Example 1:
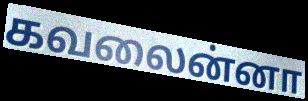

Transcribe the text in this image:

கவலைன்னா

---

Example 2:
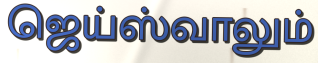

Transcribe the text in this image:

ஜெய்ஸ்வாலும்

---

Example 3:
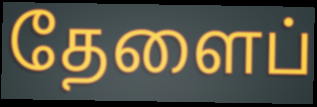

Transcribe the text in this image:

தேளைப்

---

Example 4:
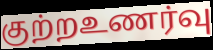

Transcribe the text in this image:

குற்றஉணர்வு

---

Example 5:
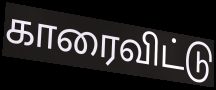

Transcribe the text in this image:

காரைவிட்டு